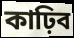
কাঢ়িব